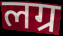
लग्र